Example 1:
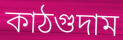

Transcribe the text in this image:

কাঠগুদাম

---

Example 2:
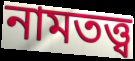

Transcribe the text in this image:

নামতত্ত্ব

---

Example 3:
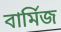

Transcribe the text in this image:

বার্মিজ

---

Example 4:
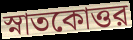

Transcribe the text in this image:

স্নাতকোত্তর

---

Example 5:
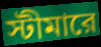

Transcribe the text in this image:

স্টীমারে